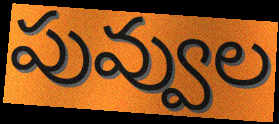
పువ్వుల